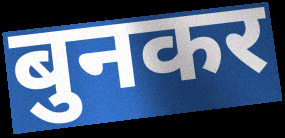
बुनकर